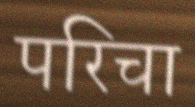
परिचा